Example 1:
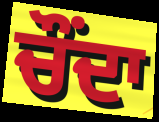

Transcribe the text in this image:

ਚੌਂਦਾ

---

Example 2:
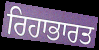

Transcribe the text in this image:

ਰਿਹਾਭਾਰਤ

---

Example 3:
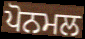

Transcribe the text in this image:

ਪੋਨਮਲ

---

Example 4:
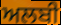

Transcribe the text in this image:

ਅਲਬੀ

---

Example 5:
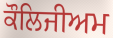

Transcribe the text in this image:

ਕੌਲਿਜੀਅਮ